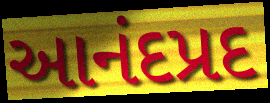
આનંદપ્રદ